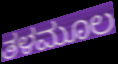
ತಳಮೂಲ